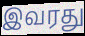
இவரது